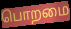
பொறமை